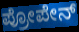
ಪ್ರೋಪೇನ್